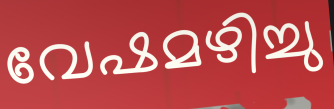
വേഷമഴിച്ചു